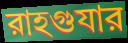
রাহগুযার